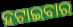
ହଟାଇବାର